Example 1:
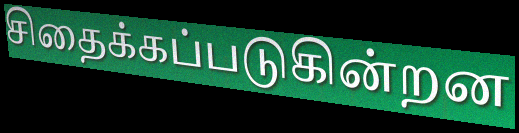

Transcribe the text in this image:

சிதைக்கப்படுகின்றன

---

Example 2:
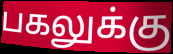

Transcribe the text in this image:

பகலுக்கு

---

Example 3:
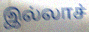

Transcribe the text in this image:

இல்லாச்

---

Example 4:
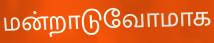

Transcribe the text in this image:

மன்றாடுவோமாக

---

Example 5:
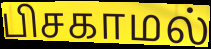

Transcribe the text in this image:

பிசகாமல்